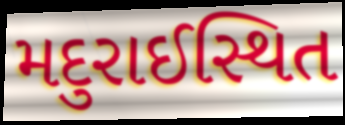
મદુરાઈસ્થિત